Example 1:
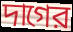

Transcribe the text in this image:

দাগের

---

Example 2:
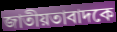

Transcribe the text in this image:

জাতীয়তাবাদকে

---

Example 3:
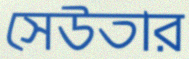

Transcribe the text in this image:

সেউতার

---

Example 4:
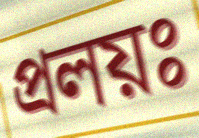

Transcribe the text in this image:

প্রলয়ঃ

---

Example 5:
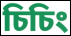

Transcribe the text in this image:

চিচিং